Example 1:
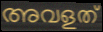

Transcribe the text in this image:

അവളത്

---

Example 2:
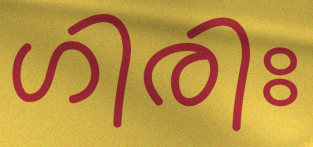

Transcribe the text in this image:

ഗിരിഃ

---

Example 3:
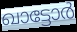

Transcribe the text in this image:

ഖാട്ടോർ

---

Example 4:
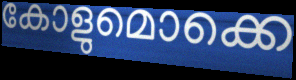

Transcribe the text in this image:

കോളുമൊക്കെ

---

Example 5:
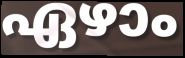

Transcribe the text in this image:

ഏഴാം